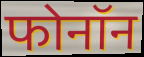
फोनॉन